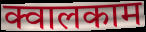
क्वालकाम